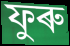
ফুৰু